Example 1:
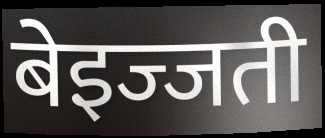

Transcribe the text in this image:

बेइज्‍जती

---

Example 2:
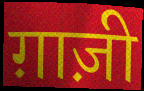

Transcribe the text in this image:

ग़ाज़ी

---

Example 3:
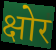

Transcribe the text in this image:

क्षोर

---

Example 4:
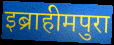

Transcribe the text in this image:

इब्राहीमपुरा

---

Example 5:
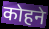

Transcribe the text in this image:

कोहने